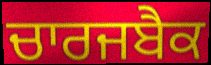
ਚਾਰਜਬੈਕ